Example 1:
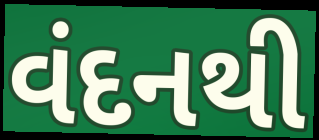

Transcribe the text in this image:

વંદનથી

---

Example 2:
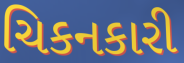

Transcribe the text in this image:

ચિકનકારી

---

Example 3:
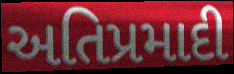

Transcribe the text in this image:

અતિપ્રમાદી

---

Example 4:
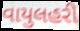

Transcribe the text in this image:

વાયુલહરી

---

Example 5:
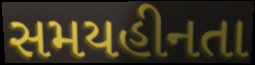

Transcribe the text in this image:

સમયહીનતા